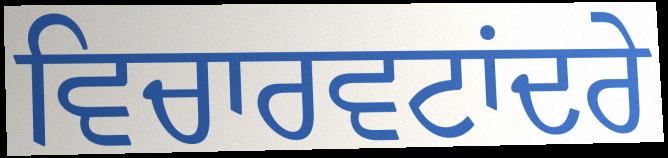
ਵਿਚਾਰਵਟਾਂਦਰੇ